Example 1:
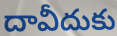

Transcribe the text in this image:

దావీదుకు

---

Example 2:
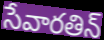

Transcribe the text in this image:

సేవారతిన్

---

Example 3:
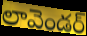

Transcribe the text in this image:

లావెండర్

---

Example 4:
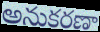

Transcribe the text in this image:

అనుకరణా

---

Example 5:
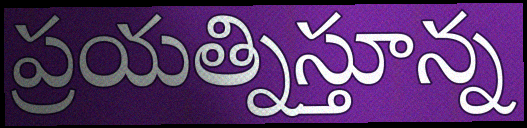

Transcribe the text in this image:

ప్రయత్నిస్తూన్న